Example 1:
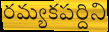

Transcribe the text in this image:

రమ్యకపర్దిని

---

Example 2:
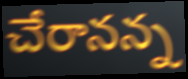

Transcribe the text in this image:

చేరానన్న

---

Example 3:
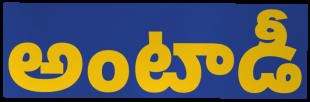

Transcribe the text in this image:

అంటాడీ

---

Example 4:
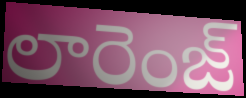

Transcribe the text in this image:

లారెంజ్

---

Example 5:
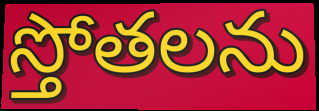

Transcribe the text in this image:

స్తోతలను